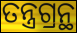
ତନ୍ତ୍ରଗ୍ରନ୍ଥ